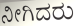
ನೀಗಿದರು